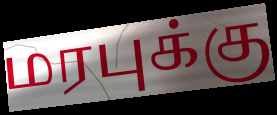
மரபுக்கு